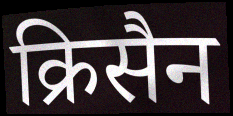
क्रिसैन